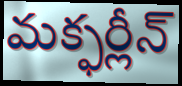
మక్ఫర్లీన్